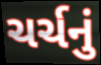
ચર્ચનું